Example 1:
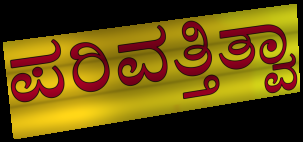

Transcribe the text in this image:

ಪರಿವತ್ತಿತ್ವಾ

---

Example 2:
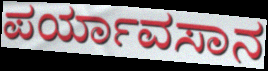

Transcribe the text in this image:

ಪರ್ಯಾವಸಾನ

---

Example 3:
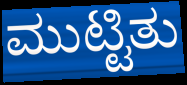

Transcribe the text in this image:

ಮುಟ್ಟಿತು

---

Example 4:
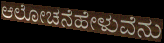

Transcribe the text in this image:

ಆಲೋಚನೆಹೇಳುವೆನು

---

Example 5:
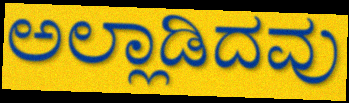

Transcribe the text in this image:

ಅಲ್ಲಾಡಿದವು